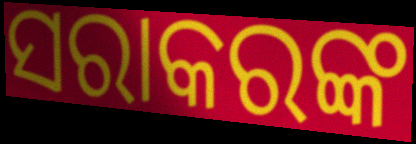
ସରାକରଙ୍କ